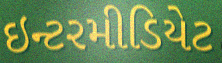
ઇન્ટરમીડિયેટ